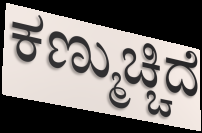
ಕಣ್ಮುಚ್ಚಿದೆ